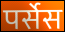
पर्सेस